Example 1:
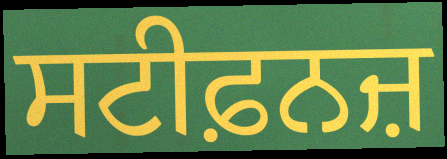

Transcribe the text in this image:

ਸਟੀਫ਼ਨਜ਼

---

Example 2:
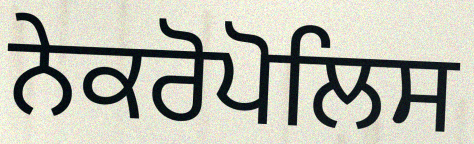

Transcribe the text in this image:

ਨੇਕਰੋਪੋਲਿਸ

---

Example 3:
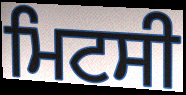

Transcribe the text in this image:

ਮਿਟਸੀ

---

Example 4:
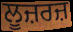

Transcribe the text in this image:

ਲੂਜ਼ਰਜ਼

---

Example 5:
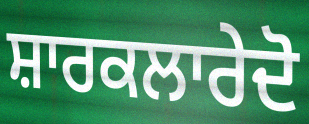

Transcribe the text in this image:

ਸ਼ਾਰਕਲਾਰੇਦੋ